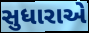
સુધારાએ